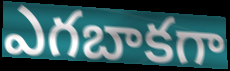
ఎగబాకగా